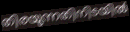
തിരയുന്നതിനിടയിൽ